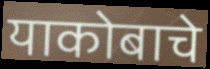
याकोबाचे